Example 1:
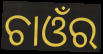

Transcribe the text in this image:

ଚାଓଁର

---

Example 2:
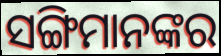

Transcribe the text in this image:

ସଙ୍ଗିମାନଙ୍କର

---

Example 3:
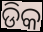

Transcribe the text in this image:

ଡିକ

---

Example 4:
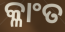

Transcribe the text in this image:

କ୍ଳାଂତ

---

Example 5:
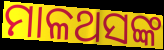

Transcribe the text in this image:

ମାଳଥସଙ୍କ